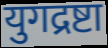
युगद्रष्टा